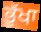
ਭੁੱਖਾ